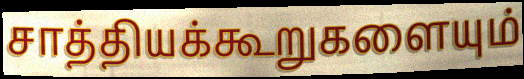
சாத்தியக்கூறுகளையும்